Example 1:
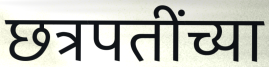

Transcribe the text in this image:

छत्रपतींच्या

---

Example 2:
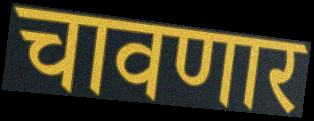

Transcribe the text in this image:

चावणार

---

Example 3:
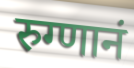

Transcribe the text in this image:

रुग्णानं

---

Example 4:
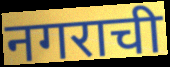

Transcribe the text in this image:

नगराची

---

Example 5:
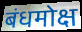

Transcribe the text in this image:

बंधमोक्ष